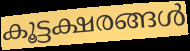
കൂട്ടക്ഷരങ്ങൾ